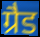
ग्रैड